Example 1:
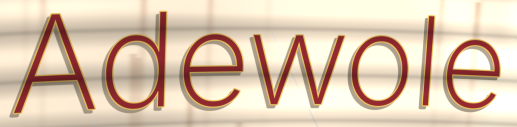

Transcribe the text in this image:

Adewole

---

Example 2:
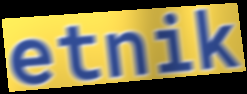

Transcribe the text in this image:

etnik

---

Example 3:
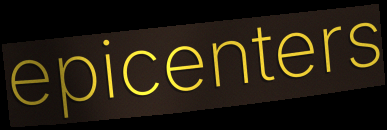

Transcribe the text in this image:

epicenters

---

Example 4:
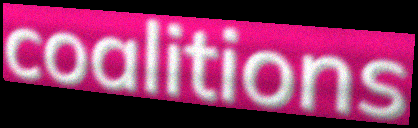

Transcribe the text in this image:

coalitions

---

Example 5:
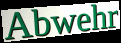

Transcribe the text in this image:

Abwehr